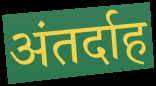
अंतर्दाह